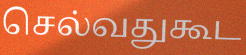
செல்வதுகூட